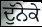
ਦੁੱਨੇਕੇ